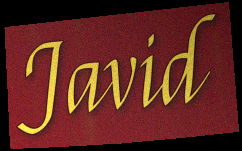
Javid